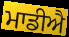
ਮਾਡੀਐ